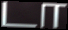
டா